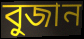
বুজান